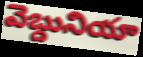
వెబ్దునియా